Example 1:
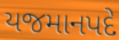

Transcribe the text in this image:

યજમાનપદે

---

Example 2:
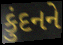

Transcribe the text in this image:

કુંદનને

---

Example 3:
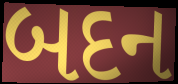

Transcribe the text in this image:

બદન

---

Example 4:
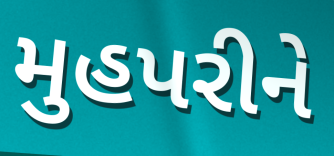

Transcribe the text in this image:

મુહપરીને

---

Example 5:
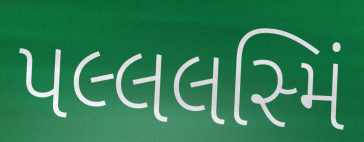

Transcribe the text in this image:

પલ્લલસ્મિં